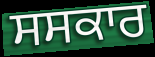
ਸਸਕਾਰ